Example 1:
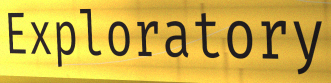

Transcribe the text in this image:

Exploratory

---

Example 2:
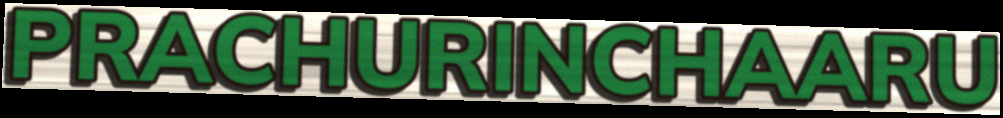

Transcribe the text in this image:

PRACHURINCHAARU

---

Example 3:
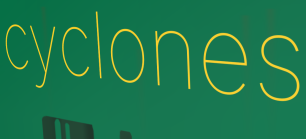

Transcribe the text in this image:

cyclones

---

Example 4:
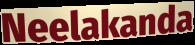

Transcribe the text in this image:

Neelakanda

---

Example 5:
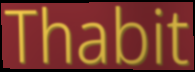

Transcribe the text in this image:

Thabit